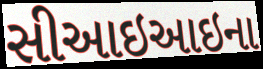
સીઆઇઆઇના